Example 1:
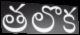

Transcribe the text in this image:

తలొక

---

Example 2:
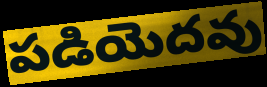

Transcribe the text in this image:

పడియెదవు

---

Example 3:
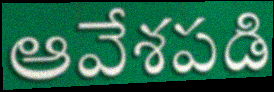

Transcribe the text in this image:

ఆవేశపడి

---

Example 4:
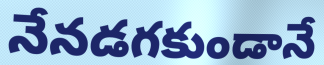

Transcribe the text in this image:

నేనడగకుండానే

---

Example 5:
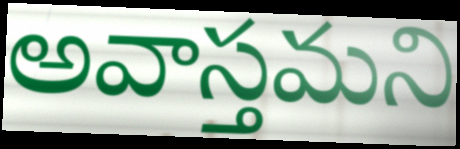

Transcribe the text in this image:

అవాస్తమని